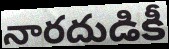
నారదుడికీ